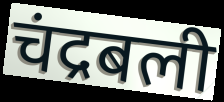
चंद्रबली